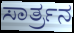
ಸಾರ್ತ್ರನ